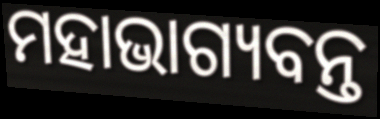
ମହାଭାଗ୍ୟବନ୍ତ